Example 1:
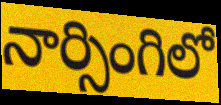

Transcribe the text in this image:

నార్సింగిలో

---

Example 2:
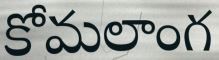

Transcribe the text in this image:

కోమలాంగ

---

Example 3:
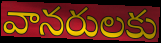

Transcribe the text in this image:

వానరులకు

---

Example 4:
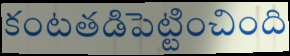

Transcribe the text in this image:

కంటతడిపెట్టించింది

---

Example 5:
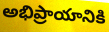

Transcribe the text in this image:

అభిప్రాయానికి